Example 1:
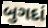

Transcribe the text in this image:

બુગદાં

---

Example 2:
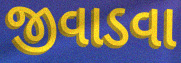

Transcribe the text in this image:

જીવાડવા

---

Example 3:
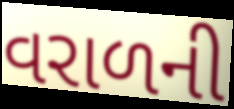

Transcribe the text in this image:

વરાળની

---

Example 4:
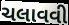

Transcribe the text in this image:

ચલાવવી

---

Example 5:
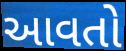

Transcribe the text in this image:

આવતો